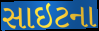
સાઇટના